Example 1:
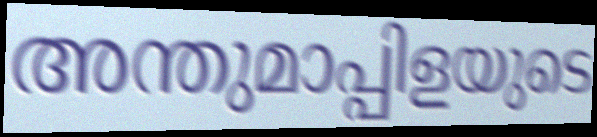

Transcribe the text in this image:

അന്തുമാപ്പിളയുടെ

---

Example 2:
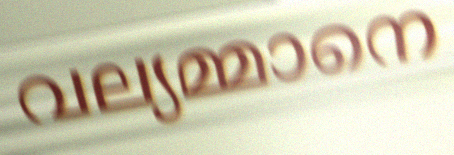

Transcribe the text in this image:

വല്യമ്മാനെ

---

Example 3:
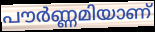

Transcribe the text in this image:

പൗർണ്ണമിയാണ്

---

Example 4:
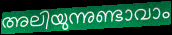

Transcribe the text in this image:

അലിയുന്നുണ്ടാവാം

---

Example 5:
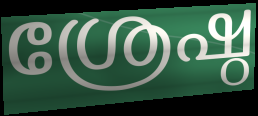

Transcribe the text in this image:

ശ്രേഷ്ഠ